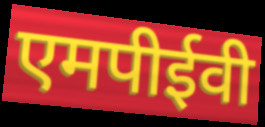
एमपीईवी